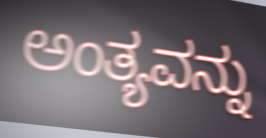
ಅಂತ್ಯವನ್ನು